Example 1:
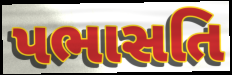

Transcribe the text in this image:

પભાસતિ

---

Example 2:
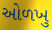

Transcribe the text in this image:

ઓળખુ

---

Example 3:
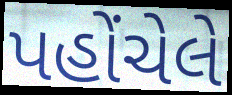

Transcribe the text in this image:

પહોંચેલે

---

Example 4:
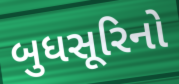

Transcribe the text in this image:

બુધસૂરિનો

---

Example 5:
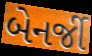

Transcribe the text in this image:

બેનર્જી